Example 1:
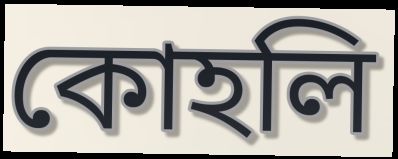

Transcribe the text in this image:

কোহলি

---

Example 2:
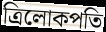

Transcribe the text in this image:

ত্রিলোকপতি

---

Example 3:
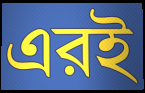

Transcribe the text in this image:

এরই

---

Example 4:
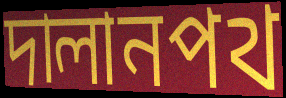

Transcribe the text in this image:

দালানপথ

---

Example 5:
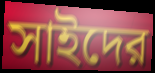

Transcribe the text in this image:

সাইদের